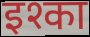
इश्का